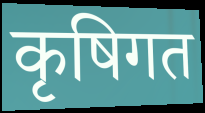
कृषिगत